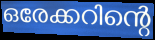
ഒരേക്കറിന്റെ